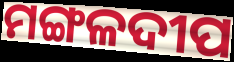
ମଙ୍ଗଳଦୀପ